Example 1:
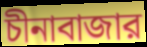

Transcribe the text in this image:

চীনাবাজার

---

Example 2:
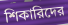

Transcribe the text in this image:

শিকারিদের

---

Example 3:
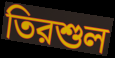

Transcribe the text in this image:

তিরশুল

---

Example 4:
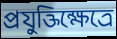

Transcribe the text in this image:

প্রযুক্তিক্ষেত্রে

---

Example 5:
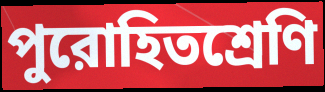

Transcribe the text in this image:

পুরোহিতশ্রেণি